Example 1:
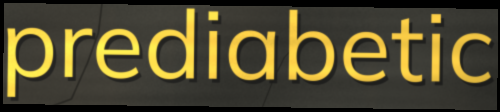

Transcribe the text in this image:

prediabetic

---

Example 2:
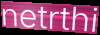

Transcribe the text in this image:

netrthi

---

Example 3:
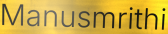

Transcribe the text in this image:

Manusmrithi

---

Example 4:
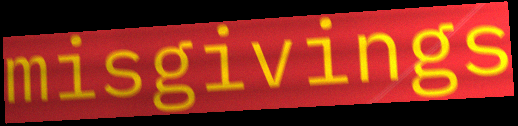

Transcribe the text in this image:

misgivings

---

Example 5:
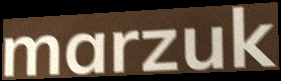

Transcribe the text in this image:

marzuk